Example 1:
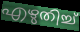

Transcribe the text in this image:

എഴുതിച്ച്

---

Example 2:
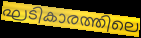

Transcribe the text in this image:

ഘടികാരത്തിലെ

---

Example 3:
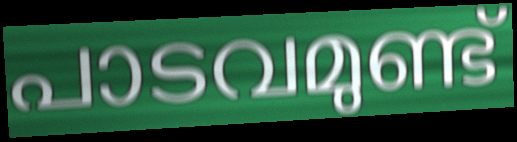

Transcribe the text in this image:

പാടവമുണ്ട്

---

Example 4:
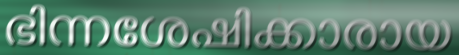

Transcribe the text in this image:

ഭിന്നശേഷിക്കാരായ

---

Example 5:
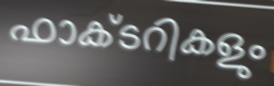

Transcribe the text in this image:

ഫാക്ടറികളും